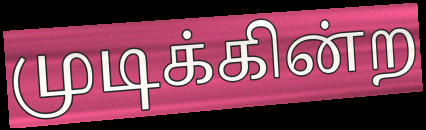
முடிக்கின்ற